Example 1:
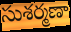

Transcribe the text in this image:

సుశర్మణా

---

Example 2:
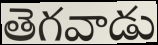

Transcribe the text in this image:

తెగవాడు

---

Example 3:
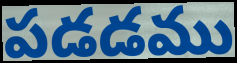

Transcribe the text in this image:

పడడము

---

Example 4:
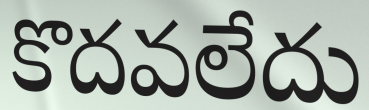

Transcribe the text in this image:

కొదవలేదు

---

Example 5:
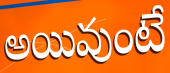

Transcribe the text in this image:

అయివుంటే